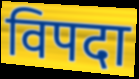
विपदा